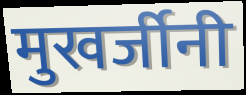
मुखर्जीनी